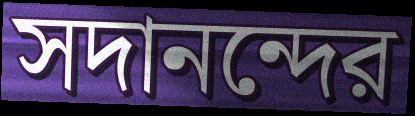
সদানন্দের